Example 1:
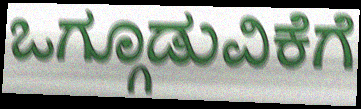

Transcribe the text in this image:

ಒಗ್ಗೂಡುವಿಕೆಗೆ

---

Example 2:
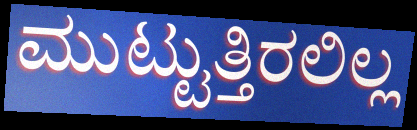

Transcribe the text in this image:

ಮುಟ್ಟುತ್ತಿರಲಿಲ್ಲ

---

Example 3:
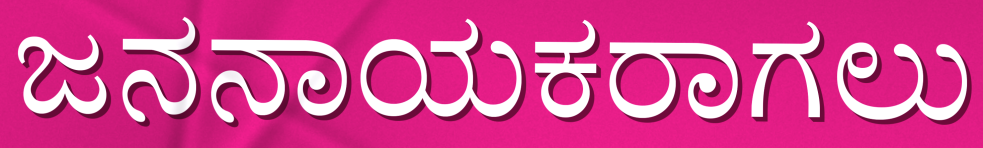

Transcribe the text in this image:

ಜನನಾಯಕರಾಗಲು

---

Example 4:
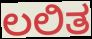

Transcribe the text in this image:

ಲಲಿತ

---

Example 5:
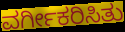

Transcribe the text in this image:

ವರ್ಗೀಕರಿಸಿತು